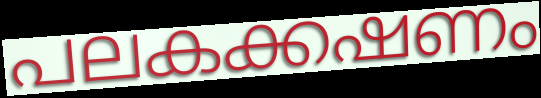
പലകക്കഷണം